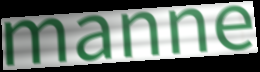
manne